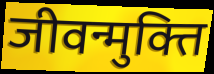
जीवन्मुक्ति